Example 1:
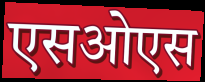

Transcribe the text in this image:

एसओएस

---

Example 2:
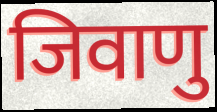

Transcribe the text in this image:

जिवाणु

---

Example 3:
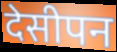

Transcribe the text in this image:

देसीपन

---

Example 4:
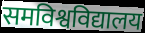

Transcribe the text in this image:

समविश्वविद्यालय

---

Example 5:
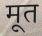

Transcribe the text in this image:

मूत